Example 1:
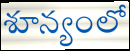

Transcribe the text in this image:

శూన్యంలో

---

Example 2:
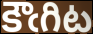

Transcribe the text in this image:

కౌఁగిట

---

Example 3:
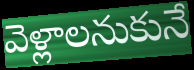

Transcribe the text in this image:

వెళ్లాలనుకునే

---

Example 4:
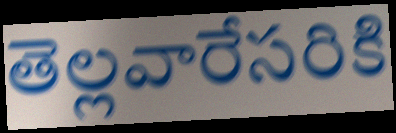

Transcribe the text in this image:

తెల్లవారేసరికి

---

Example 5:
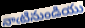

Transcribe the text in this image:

నాఁటినుండియు